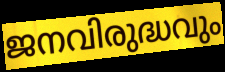
ജനവിരുദ്ധവും